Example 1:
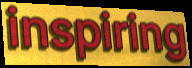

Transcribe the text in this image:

inspiring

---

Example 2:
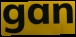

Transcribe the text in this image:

gan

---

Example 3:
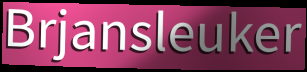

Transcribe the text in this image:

Brjansleuker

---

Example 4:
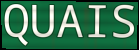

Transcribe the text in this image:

QUAIS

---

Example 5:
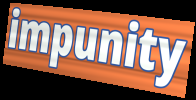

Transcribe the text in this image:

impunity